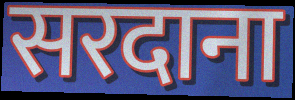
सरदाना